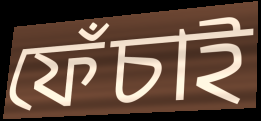
ফেঁচাই